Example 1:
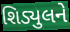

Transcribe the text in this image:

શિડ્યુલને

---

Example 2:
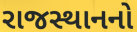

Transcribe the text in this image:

રાજસ્થાનનો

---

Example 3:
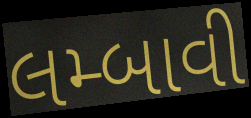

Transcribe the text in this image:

લમ્બાવી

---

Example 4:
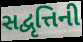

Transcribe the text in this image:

સદ્વૃત્તિની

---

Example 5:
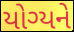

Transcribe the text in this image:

યોગ્યને